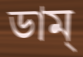
ডাম্